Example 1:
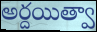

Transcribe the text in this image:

అర్దయిత్వా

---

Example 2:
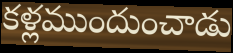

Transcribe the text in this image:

కళ్లముందుంచాడు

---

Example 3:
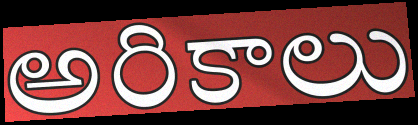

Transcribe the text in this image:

అరికాలు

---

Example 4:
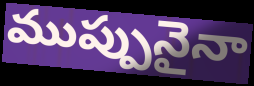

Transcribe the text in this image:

ముప్పునైనా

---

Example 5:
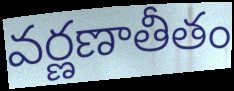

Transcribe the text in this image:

వర్ణణాతీతం